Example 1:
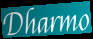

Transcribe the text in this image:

Dharmo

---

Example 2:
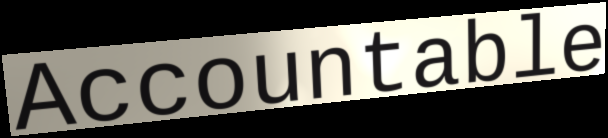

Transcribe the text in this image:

Accountable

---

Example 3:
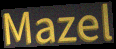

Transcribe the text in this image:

Mazel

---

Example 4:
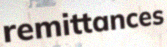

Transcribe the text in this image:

remittances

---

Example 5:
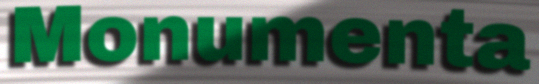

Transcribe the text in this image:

Monumenta